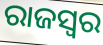
ରାଜସ୍ବର